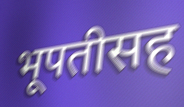
भूपतीसह